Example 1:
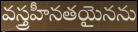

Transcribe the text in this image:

వస్త్రహీనతయైనను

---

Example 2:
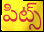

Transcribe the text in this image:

పిట్స్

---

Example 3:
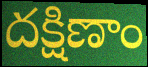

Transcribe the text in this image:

దక్షిణాం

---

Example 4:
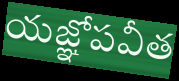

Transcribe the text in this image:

యజ్ఞోపవీత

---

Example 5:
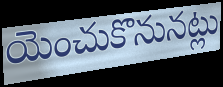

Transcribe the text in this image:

యెంచుకొనునట్లు